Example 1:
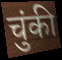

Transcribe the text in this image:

चुंकी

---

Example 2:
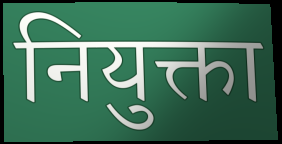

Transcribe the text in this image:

नियुक्ता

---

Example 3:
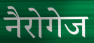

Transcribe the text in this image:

नैरोगेज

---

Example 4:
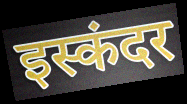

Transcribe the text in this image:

इस्कंदर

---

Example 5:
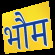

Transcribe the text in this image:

भौम